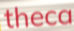
theca